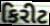
કિરીટ